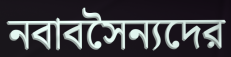
নবাবসৈন্যদের